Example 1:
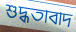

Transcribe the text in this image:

শুদ্ধতাবাদ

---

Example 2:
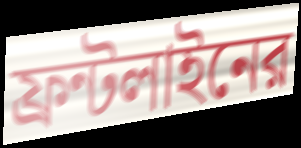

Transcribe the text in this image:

ফ্রন্টলাইনের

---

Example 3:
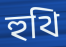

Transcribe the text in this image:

হুথি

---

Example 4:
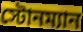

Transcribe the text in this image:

স্টোনম্যান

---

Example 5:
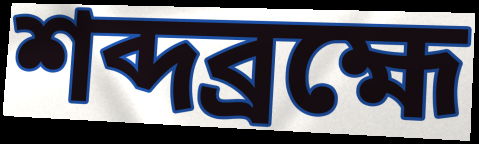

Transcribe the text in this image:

শব্দব্রহ্মে